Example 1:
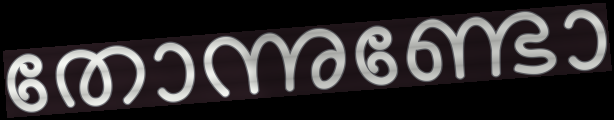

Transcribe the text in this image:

തോന്നുണ്ടോ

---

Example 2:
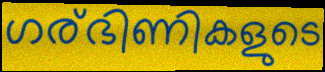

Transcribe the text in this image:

ഗര്ഭിണികളുടെ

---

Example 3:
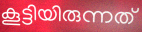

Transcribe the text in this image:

കൂട്ടിയിരുന്നത്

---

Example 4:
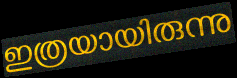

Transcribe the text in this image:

ഇത്രയായിരുന്നു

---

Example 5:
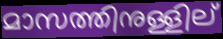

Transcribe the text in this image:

മാസത്തിനുള്ളില്